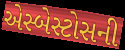
એસ્બેસ્ટોસની